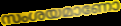
സംശയമാണോ